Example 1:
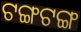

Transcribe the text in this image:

ଟଙ୍ଗଟଙ୍ଗ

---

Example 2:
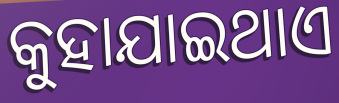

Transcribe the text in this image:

କୁହାଯାଇଥାଏ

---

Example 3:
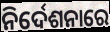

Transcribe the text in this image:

ନିର୍ଦେଶନାରେ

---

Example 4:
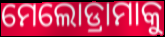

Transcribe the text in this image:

ମେଲୋଡ୍ରାମାକୁ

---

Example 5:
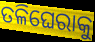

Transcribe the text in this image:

ତଳିଘେରାକୁ